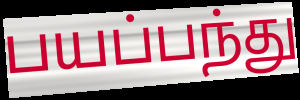
பயப்பந்து